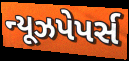
ન્યૂઝપેપર્સ